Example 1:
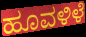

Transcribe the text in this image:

ಹೂವಳಿಳೆ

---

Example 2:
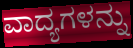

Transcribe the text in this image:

ವಾದ್ಯಗಳನ್ನು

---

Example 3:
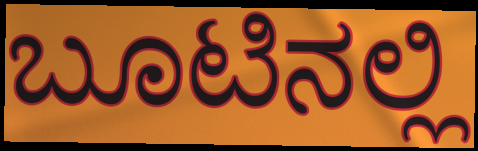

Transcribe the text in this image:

ಬೂಟಿನಲ್ಲಿ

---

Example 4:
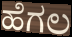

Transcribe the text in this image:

ಹೆಗಲ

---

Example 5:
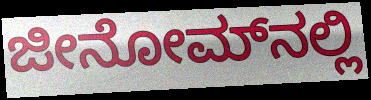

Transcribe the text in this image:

ಜೀನೋಮ್‌ನಲ್ಲಿ